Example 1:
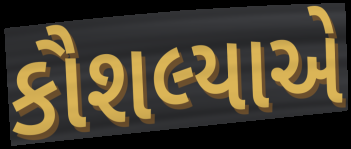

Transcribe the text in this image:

કૌશલ્યાએ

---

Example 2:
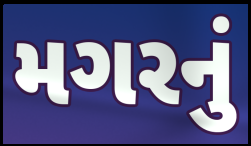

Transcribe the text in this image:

મગરનું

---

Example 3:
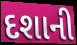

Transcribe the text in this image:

દશાની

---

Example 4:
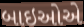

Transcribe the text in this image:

બાઇઓએ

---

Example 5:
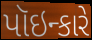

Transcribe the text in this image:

પૉઇન્કારે